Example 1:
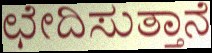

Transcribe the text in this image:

ಛೇದಿಸುತ್ತಾನೆ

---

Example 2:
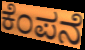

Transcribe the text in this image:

ಕೆಂಪನೆ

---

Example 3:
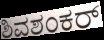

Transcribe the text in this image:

ಶಿವಶಂಕರ್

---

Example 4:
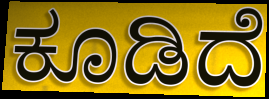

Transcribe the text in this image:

ಕೂಡಿದೆ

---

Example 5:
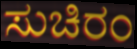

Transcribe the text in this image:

ಸುಚಿರಂ